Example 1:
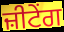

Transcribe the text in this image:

ਜ਼ੀਟੇਂਗ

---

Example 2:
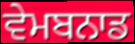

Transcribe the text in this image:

ਵੇਮਬਨਾਡ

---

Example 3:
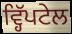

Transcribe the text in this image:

ਵ੍ਹਿੱਪਟੇਲ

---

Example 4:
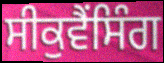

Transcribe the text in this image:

ਸੀਕੁਵੈਂਸਿੰਗ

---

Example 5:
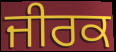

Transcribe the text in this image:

ਜੀਰਕ